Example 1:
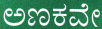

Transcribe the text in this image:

ಅಣಕವೇ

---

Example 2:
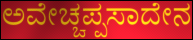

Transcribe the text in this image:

ಅವೇಚ್ಚಪ್ಪಸಾದೇನ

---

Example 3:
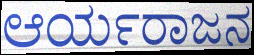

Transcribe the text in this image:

ಆರ್ಯರಾಜನ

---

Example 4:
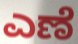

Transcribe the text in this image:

ಎಣೆ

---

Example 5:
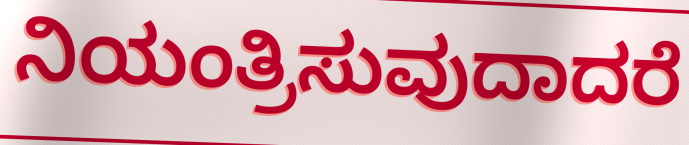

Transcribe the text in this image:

ನಿಯಂತ್ರಿಸುವುದಾದರೆ